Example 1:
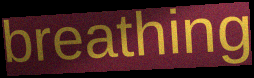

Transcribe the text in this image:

breathing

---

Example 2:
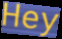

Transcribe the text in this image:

Hey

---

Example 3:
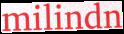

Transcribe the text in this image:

milindn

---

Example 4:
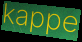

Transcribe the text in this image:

kappe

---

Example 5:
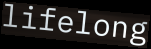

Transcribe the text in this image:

lifelong